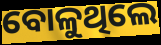
ବୋଳୁଥିଲେ